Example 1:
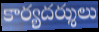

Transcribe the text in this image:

కార్యదర్శులు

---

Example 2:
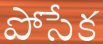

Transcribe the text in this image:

పోసేక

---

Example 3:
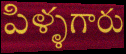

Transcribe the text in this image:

పిళ్ళగారు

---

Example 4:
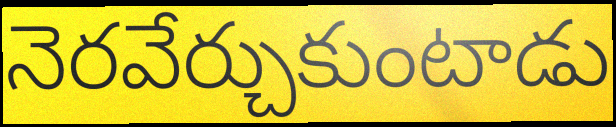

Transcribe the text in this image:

నెరవేర్చుకుంటాడు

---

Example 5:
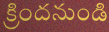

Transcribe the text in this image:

క్రిందనుండి